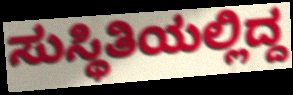
ಸುಸ್ಥಿತಿಯಲ್ಲಿದ್ದ